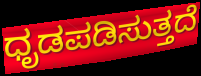
ಧೃಡಪಡಿಸುತ್ತದೆ